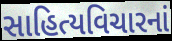
સાહિત્યવિચારનાં